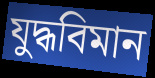
যুদ্ধবিমান